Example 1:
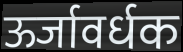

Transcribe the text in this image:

ऊर्जावर्धक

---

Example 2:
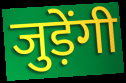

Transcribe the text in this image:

जुड़ेंगी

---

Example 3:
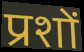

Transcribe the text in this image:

प्रशों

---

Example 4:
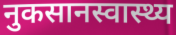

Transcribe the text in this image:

नुकसानस्वास्थ्य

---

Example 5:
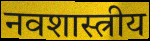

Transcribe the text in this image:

नवशास्त्रीय